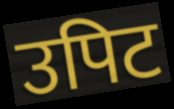
उपिट